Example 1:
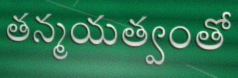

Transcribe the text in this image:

తన్మయత్వంతో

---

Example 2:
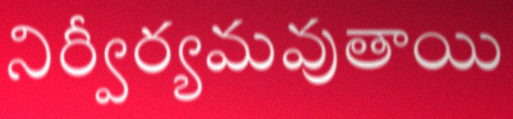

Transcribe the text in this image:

నిర్వీర్యమవుతాయి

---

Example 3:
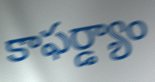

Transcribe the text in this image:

కాఫర్డ్యాం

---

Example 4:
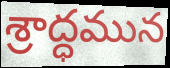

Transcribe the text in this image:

శ్రాద్ధమున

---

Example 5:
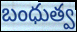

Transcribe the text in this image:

బంధుత్వ